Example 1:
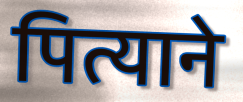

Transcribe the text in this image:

पित्याने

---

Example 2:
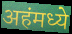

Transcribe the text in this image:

अहंमध्ये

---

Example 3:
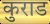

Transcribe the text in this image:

कुराड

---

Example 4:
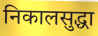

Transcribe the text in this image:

निकालसुद्धा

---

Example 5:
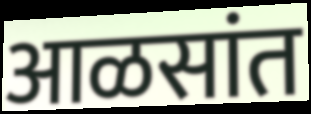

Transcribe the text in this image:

आळसांत